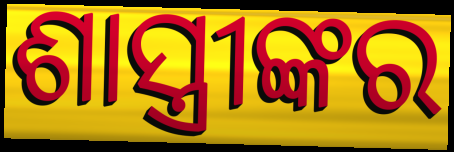
ଶାସ୍ତ୍ରୀଙ୍କର